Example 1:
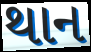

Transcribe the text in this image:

થાન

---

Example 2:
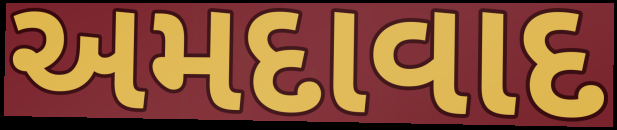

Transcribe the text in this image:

અમદાવાદ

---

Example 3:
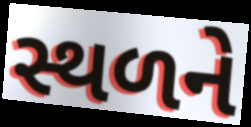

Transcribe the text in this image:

સ્થળને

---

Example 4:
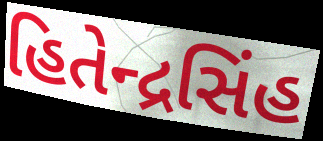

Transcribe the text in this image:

હિતેન્દ્રસિંહ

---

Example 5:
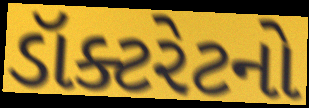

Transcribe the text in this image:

ડૉક્ટરેટનો